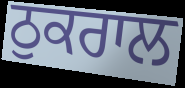
ਠੁਕਰਾਲ